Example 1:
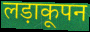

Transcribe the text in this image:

लड़ाकूपन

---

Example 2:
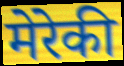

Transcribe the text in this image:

मेरेकी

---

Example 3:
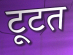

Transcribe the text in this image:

टूटत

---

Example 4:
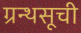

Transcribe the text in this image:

ग्रन्थसूची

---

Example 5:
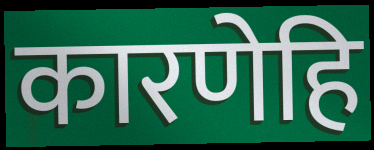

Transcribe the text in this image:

कारणेहि